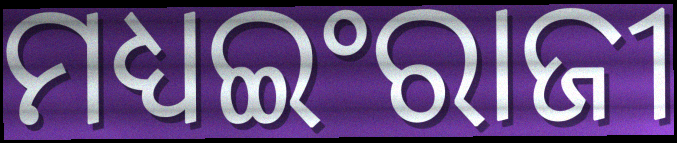
ମଧ୍ୟଇଂରାଜୀ